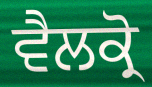
ਵੈਲਕ੍ਰੋ